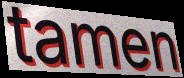
tamen